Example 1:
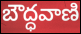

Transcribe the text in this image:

బౌద్ధవాణి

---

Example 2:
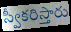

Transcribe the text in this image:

స్వీకరిస్తారు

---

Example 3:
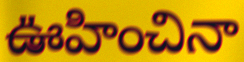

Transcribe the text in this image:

ఊహించినా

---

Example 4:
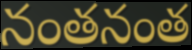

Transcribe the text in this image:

నంతనంత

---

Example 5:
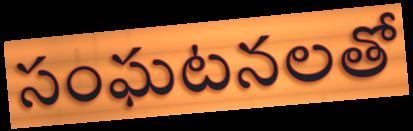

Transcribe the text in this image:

సంఘటనలతో